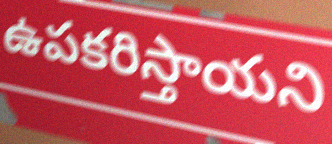
ఉపకరిస్తాయని